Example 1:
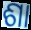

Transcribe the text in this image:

ଶା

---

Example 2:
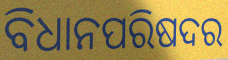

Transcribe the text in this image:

ବିଧାନପରିଷଦର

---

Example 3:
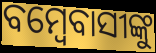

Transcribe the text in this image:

ବମ୍ବେବାସୀଙ୍କୁ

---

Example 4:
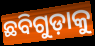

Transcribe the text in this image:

ଛବିଗୁଡ଼ାକୁ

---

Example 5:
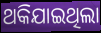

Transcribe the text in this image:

ଥକିଯାଇଥିଲା